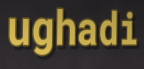
ughadi